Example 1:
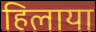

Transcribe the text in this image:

हिलाया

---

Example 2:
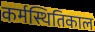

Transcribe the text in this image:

कर्मस्थितिकाल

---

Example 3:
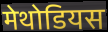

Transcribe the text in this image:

मेथोडियस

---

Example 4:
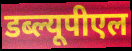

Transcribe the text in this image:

डब्ल्यूपीएल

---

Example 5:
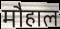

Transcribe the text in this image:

मौहाल